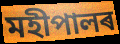
মহীপালৰ